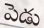
పెడు